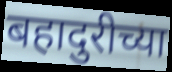
बहादुरीच्या